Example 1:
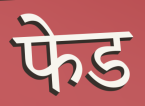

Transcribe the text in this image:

फेड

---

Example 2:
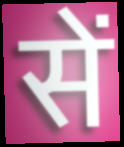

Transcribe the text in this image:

सें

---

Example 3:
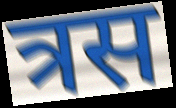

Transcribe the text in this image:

त्रस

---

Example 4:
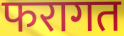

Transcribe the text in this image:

फरागत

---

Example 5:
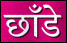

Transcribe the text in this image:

छाँडे